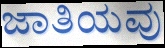
ಜಾತಿಯವು